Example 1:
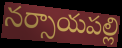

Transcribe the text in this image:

నర్సాయపల్లి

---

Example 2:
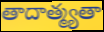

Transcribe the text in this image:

తాదాత్మ్యతా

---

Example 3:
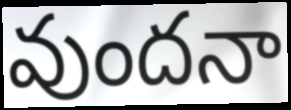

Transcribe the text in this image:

వుందనా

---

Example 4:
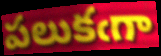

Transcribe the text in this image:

పలుకఁగా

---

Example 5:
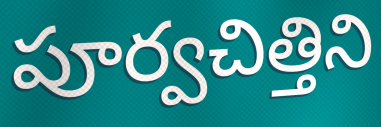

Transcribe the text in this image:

పూర్వచిత్తిని